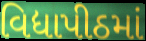
વિદ્યાપીઠમાં